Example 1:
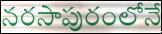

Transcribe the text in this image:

నరసాపురంలోనే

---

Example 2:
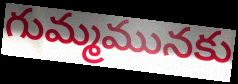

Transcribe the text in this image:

గుమ్మమునకు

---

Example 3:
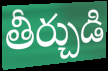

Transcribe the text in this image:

తీర్చుడి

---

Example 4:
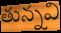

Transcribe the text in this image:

తున్నవి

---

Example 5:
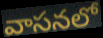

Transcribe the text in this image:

వాసనలో